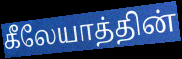
கீலேயாத்தின்